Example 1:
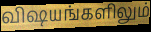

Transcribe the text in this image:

விஷயங்களிலும்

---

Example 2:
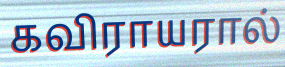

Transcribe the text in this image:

கவிராயரால்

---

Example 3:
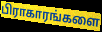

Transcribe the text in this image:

பிராகாரங்களை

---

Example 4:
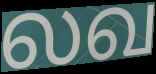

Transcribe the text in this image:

லவ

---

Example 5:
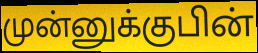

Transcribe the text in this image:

முன்னுக்குபின்